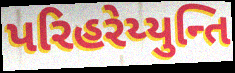
પરિહરેય્યુન્તિ